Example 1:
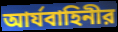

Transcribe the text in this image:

আর্যবাহিনীর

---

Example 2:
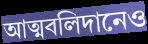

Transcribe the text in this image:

আত্মবলিদানেও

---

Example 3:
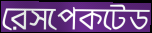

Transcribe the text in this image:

রেসপেকটেড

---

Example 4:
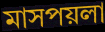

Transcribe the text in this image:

মাসপয়লা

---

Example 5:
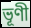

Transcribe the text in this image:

ভূণী